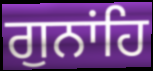
ਗੁਨਾਂਹਿ